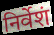
निर्वेशं